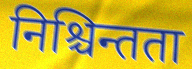
निश्चिन्तता